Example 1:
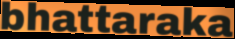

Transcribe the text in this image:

bhattaraka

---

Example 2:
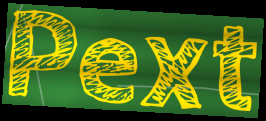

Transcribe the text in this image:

Pext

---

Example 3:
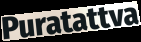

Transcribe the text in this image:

Puratattva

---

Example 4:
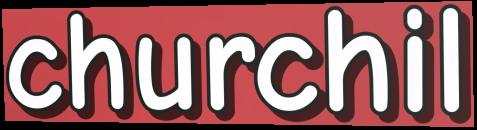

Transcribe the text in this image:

churchil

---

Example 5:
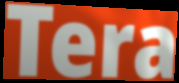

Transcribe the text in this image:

Tera